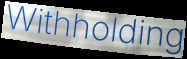
Withholding